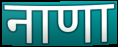
नाणा